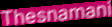
Thesnamani